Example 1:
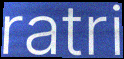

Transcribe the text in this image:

ratri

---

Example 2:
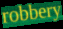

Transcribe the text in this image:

robbery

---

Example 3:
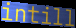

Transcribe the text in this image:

intill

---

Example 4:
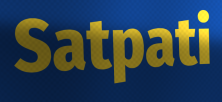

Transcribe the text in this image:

Satpati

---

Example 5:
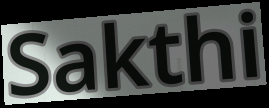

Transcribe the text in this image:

Sakthi